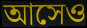
আসেও